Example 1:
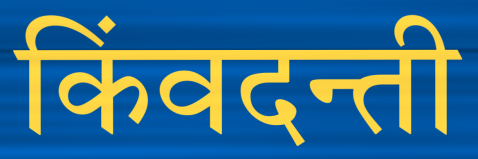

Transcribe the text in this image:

किंवदन्ती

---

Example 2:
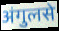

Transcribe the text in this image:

अंगुलसे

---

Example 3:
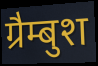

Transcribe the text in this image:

ग्रैम्बुश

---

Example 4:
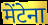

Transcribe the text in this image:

मेंटेना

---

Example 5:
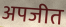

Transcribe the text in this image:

अपजीत